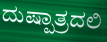
ದುಷ್ಪಾತ್ರದಲಿ